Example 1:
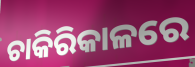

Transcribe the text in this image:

ଚାକିରିକାଳରେ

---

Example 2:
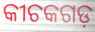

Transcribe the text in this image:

କୀଚକଗଡ଼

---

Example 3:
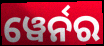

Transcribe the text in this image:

ୱେର୍ନର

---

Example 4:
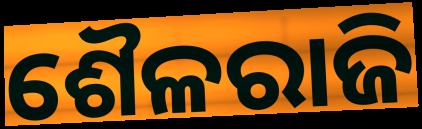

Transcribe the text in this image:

ଶୈଳରାଜି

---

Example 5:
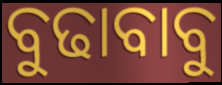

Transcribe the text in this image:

ବୁଢାବାବୁ